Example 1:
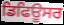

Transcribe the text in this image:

ਡਿਫਿਊਸਰ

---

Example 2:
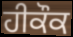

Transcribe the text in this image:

ਹੀਕੌਕ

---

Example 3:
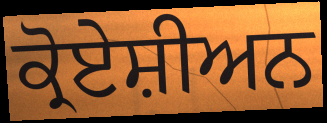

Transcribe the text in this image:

ਕ੍ਰੋਏਸ਼ੀਅਨ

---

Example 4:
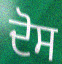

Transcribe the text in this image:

ਦੋਸ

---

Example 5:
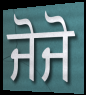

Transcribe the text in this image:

ਜੋਜੋ